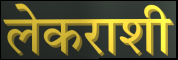
लेकराशी